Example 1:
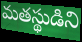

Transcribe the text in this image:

మతస్థుడిని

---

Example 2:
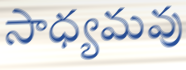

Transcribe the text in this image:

సాధ్యమవు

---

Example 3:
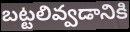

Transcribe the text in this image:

బట్టలివ్వడానికి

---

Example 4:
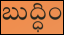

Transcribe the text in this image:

బుద్ధిం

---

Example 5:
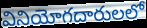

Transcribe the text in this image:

వినియోగదారులలో